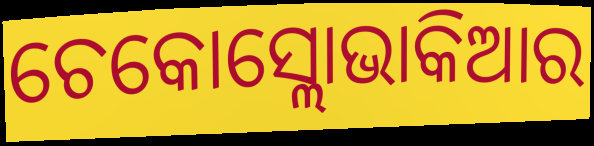
ଚେକୋସ୍ଲୋଭାକିଆର